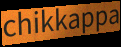
chikkappa